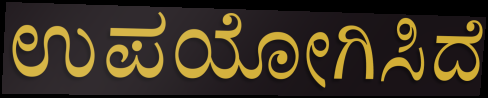
ಉಪಯೋಗಿಸಿದೆ